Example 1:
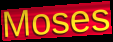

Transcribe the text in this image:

Moses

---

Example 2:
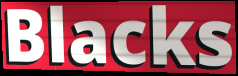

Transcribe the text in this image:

Blacks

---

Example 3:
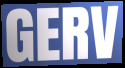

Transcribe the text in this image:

GERV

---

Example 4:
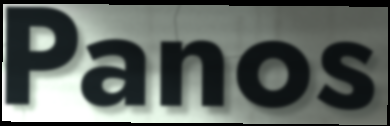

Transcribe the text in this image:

Panos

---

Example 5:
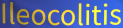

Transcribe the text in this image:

Ileocolitis